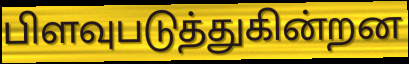
பிளவுபடுத்துகின்றன